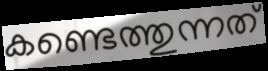
കണ്ടെത്തുന്നത്